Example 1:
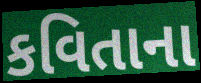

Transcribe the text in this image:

કવિતાના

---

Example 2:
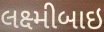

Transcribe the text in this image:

લક્ષ્મીબાઇ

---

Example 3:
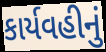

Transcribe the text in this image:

કાર્યવહીનું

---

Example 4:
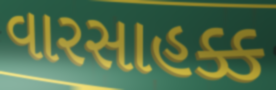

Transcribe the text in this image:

વારસાહક્ક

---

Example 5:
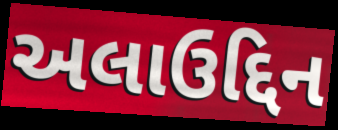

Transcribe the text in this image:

અલાઉદ્દિન